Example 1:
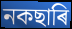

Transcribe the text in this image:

নকছাৰি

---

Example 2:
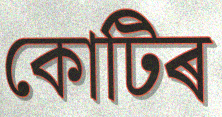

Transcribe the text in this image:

কোটিৰ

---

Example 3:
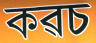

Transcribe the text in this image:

কৱচ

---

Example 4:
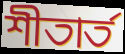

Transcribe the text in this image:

শীতাৰ্ত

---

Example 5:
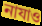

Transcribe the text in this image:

নাযাও